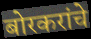
बोरकरांचे